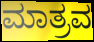
ಮಾತ್ರವ